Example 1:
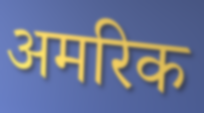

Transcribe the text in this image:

अमरिक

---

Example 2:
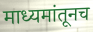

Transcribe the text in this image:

माध्यमांतूनच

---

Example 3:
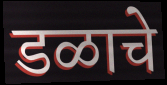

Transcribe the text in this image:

डळाचे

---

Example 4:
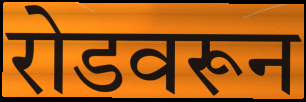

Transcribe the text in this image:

रोडवरून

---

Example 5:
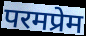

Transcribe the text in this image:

परमप्रेम